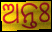
ଅନ୍ତଃ